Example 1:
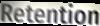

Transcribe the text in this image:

Retention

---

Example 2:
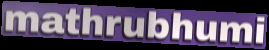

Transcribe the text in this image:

mathrubhumi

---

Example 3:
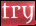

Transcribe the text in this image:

try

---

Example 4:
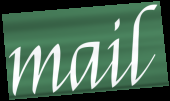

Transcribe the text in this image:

mail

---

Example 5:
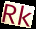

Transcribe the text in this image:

Rk